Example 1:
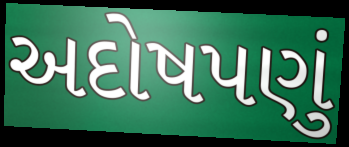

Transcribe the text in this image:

અદોષપણું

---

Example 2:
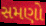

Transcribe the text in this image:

સમણો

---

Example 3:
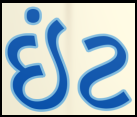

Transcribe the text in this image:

ઇંટ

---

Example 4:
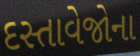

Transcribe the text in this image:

દસ્તાવેજોના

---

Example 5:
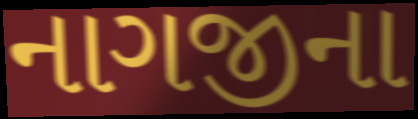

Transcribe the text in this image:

નાગજીના